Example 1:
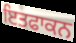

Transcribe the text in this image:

ਇਤਫਾਕਨ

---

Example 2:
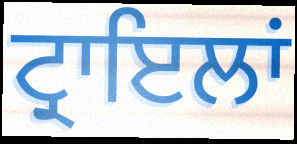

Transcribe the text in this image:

ਟ੍ਰਾਇਲਾਂ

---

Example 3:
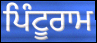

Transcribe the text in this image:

ਪਿੰਟੂਰਾਮ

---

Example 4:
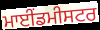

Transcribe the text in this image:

ਮਾਈਂਡਮੀਸਟਰ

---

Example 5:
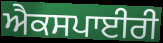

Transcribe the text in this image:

ਐਕਸਪਾਈਰੀ